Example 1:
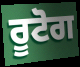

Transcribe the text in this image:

ਰੂਟੋਗ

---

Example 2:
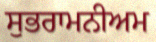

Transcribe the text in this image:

ਸੁਭਰਾਮਨੀਅਮ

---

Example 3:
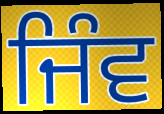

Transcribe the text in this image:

ਜਿੰਵ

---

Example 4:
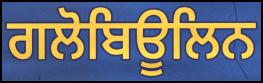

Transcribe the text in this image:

ਗਲੋਬਿਊਲਿਨ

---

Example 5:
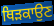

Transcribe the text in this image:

ਥਿੜਕਾਉਣ